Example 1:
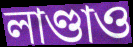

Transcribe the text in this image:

লাণ্ডাও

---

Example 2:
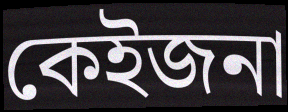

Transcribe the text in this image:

কেইজনা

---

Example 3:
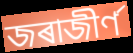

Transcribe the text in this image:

জৰাজীৰ্ণ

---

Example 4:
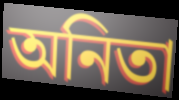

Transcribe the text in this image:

অনিতা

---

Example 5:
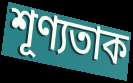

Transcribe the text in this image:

শূণ্যতাক